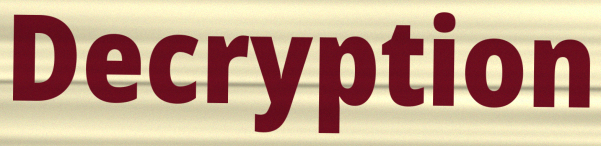
Decryption